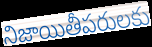
నిజాయితీపరులకు